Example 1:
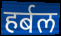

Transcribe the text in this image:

हर्बल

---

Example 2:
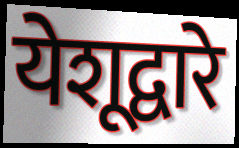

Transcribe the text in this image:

येशूद्वारे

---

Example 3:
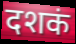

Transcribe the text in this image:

दशकं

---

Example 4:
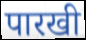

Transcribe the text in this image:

पारखी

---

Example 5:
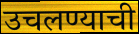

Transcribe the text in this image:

उचलण्याची